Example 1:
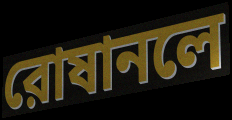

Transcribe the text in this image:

রোষানলে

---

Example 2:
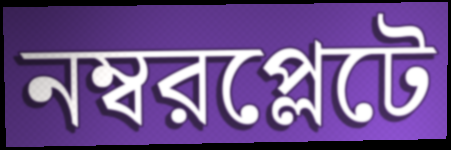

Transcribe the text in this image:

নম্বরপ্লেটে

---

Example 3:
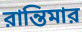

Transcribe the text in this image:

রান্তিমার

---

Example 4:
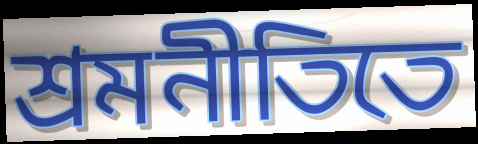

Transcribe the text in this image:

শ্রমনীতিতে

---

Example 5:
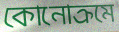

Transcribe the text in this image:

কোনোক্রমে